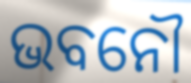
ଭବନୌ